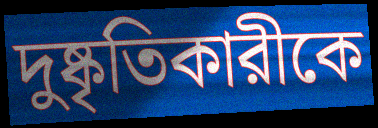
দুষ্কৃতিকারীকে